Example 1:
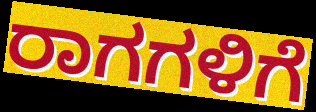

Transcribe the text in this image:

ರಾಗಗಳಿಗೆ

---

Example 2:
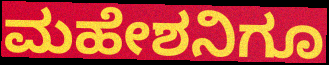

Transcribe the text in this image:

ಮಹೇಶನಿಗೂ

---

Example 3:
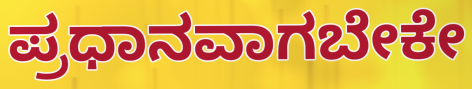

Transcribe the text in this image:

ಪ್ರಧಾನವಾಗಬೇಕೇ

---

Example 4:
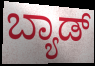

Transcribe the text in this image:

ಬ್ಯಾಡ್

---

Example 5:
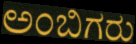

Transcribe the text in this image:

ಅಂಬಿಗರು